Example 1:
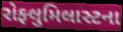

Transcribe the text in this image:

રોફ્લુમિલાસ્ટના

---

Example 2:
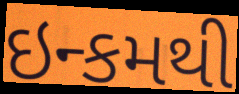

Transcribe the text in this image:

ઇન્કમથી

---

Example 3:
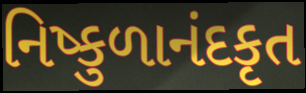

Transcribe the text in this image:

નિષ્કુળાનંદકૃત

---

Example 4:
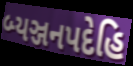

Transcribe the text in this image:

બ્યઞ્જનપદેહિ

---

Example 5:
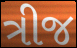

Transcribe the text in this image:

ત્રીજ